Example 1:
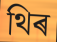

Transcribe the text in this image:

থিৰ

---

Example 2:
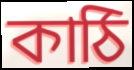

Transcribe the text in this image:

কাঠি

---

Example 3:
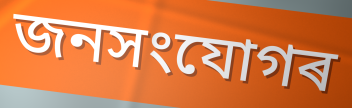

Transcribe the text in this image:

জনসংযোগৰ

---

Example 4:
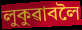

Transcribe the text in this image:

লুকুৱাবলৈ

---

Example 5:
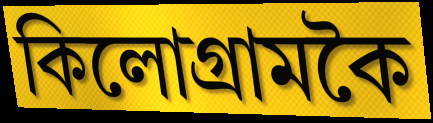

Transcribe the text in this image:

কিলোগ্ৰামকৈ